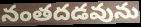
నంతదడవును